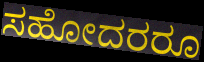
ಸಹೋದರರೂ